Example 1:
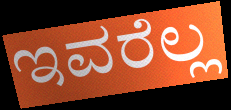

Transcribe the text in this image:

ಇವರೆಲ್ಲ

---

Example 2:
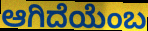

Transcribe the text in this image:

ಆಗಿದೆಯೆಂಬ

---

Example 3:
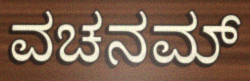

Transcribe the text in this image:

ವಚನಮ್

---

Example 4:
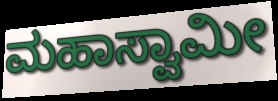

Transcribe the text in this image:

ಮಹಾಸ್ವಾಮೀ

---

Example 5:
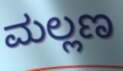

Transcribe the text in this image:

ಮಲ್ಲಣ